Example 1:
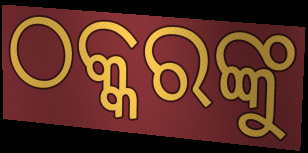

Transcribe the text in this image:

ଠକ୍କରଙ୍କୁ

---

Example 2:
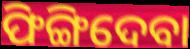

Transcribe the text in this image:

ଫିଙ୍ଗିଦେବା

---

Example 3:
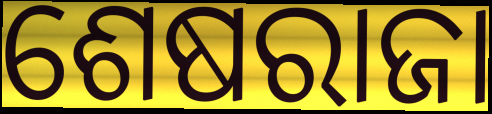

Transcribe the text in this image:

ଶେଷରାଜା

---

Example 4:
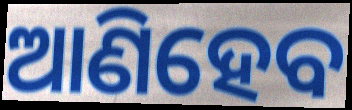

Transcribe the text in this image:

ଆଣିହେବ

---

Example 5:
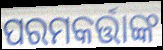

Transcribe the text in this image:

ପରମକର୍ତ୍ତାଙ୍କ